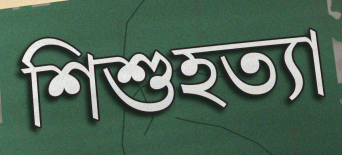
শিশুহত্যা